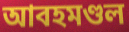
আবহমণ্ডল